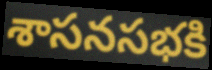
శాసనసభకి